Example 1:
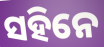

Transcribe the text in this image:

ସହିନେ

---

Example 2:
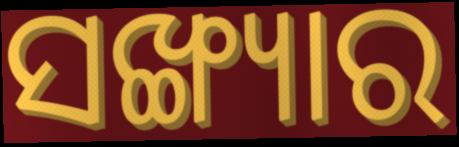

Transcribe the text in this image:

ସଙ୍ଖ୍ୟାର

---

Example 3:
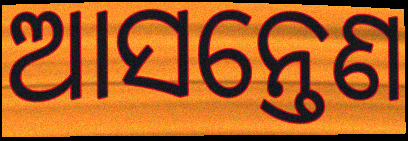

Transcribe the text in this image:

ଆସନ୍ତେଣ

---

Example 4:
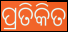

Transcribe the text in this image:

ପ୍ରତିକିତ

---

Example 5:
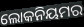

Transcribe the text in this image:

ଲୋକନିୟମର